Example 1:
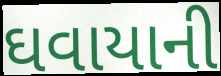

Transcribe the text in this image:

ઘવાયાની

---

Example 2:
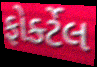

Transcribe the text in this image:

ફોર્ક્ટેલ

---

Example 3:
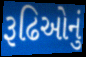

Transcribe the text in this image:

રૂઢિઓનું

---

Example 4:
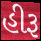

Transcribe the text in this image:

હીરૂ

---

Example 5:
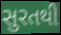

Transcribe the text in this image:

સુરતથી